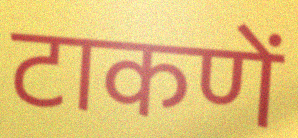
टाकणें